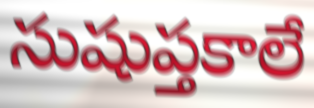
సుషుప్తకాలే